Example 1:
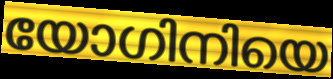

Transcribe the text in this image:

യോഗിനിയെ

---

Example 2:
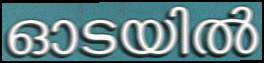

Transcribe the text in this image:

ഓടയിൽ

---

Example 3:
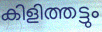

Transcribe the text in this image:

കിളിത്തട്ടും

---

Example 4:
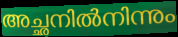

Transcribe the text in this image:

അച്ഛനിൽനിന്നും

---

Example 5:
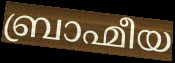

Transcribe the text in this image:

ബ്രാഹ്മീയ